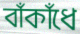
বাঁকাঁধে